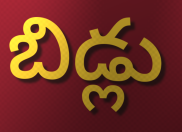
బిడ్లు